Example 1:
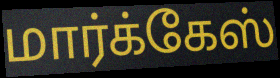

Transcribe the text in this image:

மார்க்கேஸ்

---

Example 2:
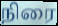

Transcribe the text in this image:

நிரை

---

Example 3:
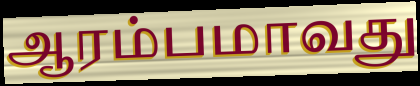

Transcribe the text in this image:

ஆரம்பமாவது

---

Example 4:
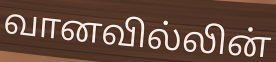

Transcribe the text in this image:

வானவில்லின்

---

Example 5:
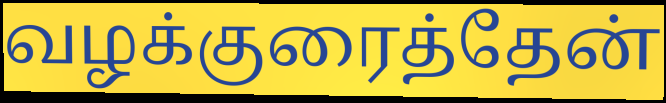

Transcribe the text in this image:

வழக்குரைத்தேன்